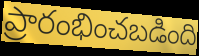
ప్రారంభించబడింది